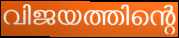
വിജയത്തിന്റെ